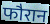
फौरान